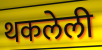
थकलेली